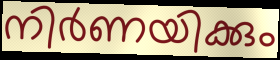
നിർണയിക്കും